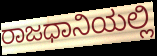
ರಾಜಧಾನಿಯಲ್ಲಿ